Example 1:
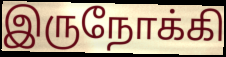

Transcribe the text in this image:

இருநோக்கி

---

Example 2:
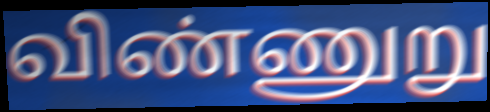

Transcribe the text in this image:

விண்ணுறு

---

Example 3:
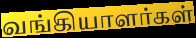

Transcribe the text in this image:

வங்கியாளர்கள்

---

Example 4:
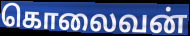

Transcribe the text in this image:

கொலைவன்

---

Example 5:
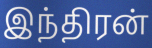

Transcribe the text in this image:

இந்திரன்